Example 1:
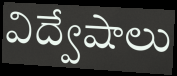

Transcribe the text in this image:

విద్వేషాలు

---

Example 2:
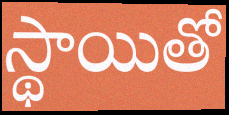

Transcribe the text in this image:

స్థాయితో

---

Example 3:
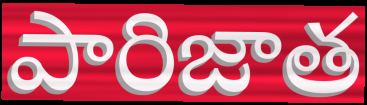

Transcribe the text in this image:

పారిజాత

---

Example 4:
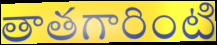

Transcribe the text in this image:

తాతగారింటి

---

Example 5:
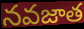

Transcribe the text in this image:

నవజాత